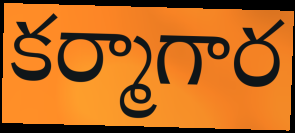
కర్మాగార